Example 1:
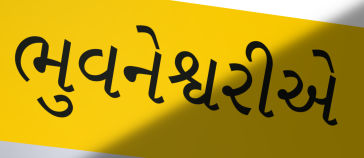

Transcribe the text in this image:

ભુવનેશ્વરીએ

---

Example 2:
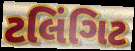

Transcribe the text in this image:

ટલિંગિટ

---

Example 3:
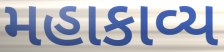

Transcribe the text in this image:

મહાકાવ્ય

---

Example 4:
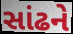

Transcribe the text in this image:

સાંઢને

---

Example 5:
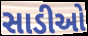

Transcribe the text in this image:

સાડીઓ